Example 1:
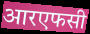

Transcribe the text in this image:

आरएफसी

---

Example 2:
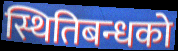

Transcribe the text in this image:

स्थितिबन्धको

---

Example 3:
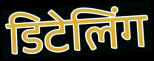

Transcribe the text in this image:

डिटेलिंग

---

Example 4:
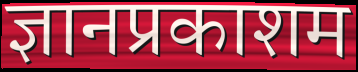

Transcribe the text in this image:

ज्ञानप्रकाशम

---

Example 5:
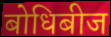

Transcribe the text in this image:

बोधिबीज